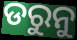
ଡରୁନୁ